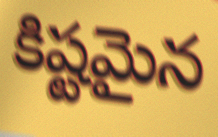
కిష్టమైన